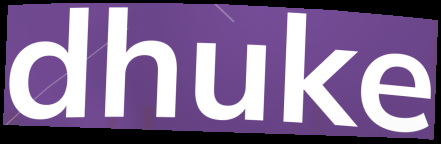
dhuke